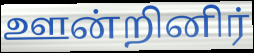
ஊன்றினிர்